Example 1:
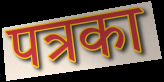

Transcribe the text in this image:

पत्रका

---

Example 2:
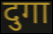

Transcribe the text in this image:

दुगा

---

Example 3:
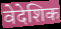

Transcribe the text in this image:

वेदेशिक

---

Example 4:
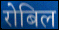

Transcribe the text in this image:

रोबिल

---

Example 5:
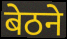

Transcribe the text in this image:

बेठने